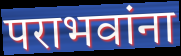
पराभवांना